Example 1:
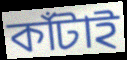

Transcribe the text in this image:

কাঁটাই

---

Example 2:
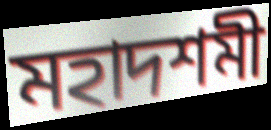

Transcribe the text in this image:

মহাদশমী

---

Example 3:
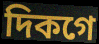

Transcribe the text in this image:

দিকগে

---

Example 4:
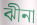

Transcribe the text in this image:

ঝীনা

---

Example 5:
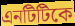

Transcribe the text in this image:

এনটিটিকে